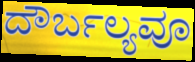
ದೌರ್ಬಲ್ಯವೂ